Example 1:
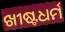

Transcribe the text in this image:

ଖୀଷ୍ଟଧର୍ମ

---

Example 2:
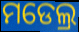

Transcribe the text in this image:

ମଡେଲ୍ର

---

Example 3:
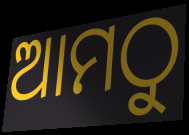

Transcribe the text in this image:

ଆମଠୁ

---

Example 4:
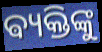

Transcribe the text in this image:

ଵ୍ୟକ୍ତିଙ୍କୁ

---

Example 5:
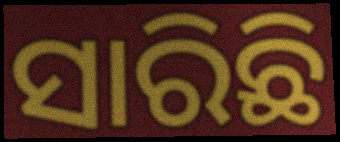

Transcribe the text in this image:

ସାରିଛି